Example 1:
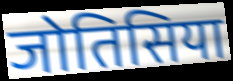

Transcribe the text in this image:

जोतिसिया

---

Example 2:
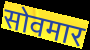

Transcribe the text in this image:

सोवमार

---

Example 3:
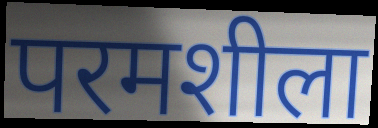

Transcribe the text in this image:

परमशीला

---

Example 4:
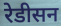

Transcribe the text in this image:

रेडीसन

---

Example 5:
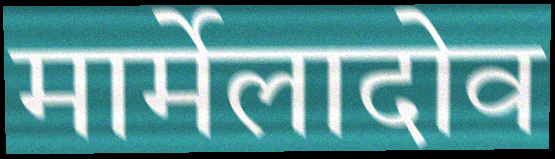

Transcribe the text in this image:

मार्मेलादोव